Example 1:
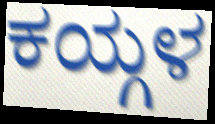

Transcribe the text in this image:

ಕಯ್ಗಳ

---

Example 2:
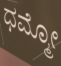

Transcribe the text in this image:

ಧಮ್ಮೋ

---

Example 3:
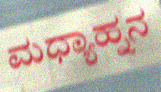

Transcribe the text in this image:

ಮಧ್ಯಾಹ್ನನ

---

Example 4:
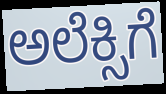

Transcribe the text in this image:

ಅಲೆಕ್ಸಿಗೆ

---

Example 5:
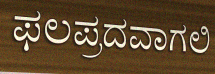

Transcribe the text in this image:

ಫಲಪ್ರದವಾಗಲಿ